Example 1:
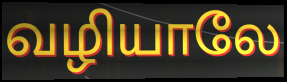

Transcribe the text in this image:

வழியாலே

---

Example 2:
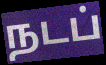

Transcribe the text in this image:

நடப்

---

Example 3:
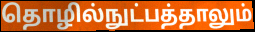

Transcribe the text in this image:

தொழில்நுட்பத்தாலும்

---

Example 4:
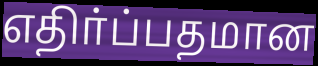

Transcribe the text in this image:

எதிர்ப்பதமான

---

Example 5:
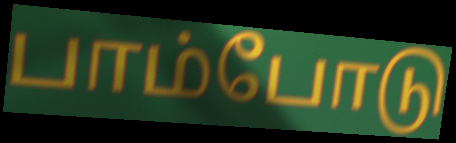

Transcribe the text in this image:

பாம்போடு